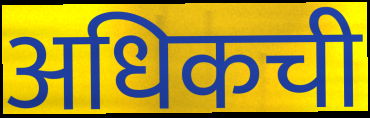
अधिकची